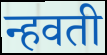
न्हवती